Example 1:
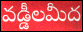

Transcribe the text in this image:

వడ్డీలమీద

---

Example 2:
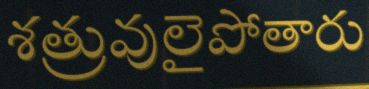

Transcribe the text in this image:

శత్రువులైపోతారు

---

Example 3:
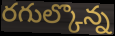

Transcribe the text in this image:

రగుల్కొన్న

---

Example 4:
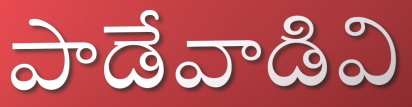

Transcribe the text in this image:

పాడేవాడివి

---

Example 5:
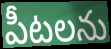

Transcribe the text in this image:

పీటలను